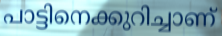
പാട്ടിനെക്കുറിച്ചാണ്